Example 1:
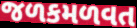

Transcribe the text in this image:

જળકમળવત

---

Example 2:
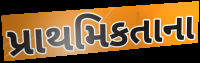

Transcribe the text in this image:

પ્રાથમિકતાના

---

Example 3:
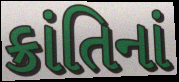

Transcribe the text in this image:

ક્રાંતિનાં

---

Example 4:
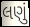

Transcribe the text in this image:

લણું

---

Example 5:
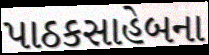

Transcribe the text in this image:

પાઠકસાહેબના